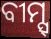
ବୀମ୍ସ୍